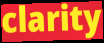
clarity